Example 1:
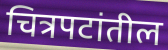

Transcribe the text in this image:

चित्रपटांतील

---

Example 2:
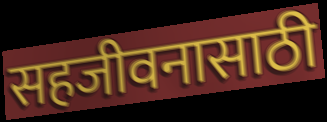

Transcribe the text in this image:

सहजीवनासाठी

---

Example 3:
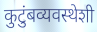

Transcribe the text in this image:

कुटुंबव्यवस्थेशी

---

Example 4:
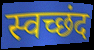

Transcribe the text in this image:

स्वच्छंद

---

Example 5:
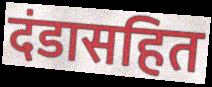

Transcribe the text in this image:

दंडासहित